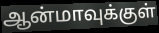
ஆன்மாவுக்குள்